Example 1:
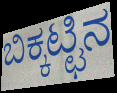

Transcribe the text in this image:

ಬಿಕ್ಕಟ್ಟಿನ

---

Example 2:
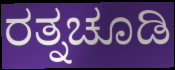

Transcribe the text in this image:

ರತ್ನಚೂಡಿ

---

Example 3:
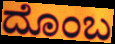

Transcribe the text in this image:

ದೊಂಬ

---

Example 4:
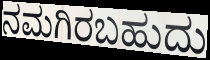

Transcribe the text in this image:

ನಮಗಿರಬಹುದು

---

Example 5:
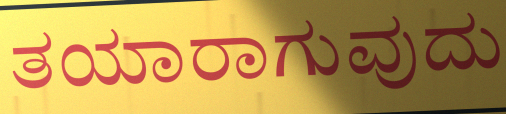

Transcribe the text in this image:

ತಯಾರಾಗುವುದು